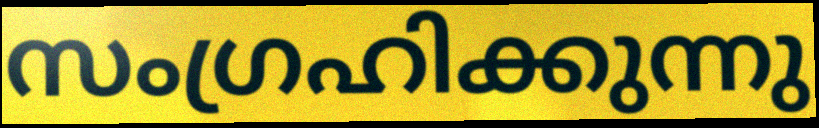
സംഗ്രഹിക്കുന്നു